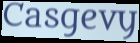
Casgevy